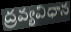
ద్రవ్యవిధాన